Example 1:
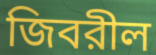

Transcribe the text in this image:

জিবরীল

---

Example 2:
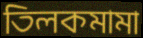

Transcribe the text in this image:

তিলকমামা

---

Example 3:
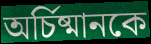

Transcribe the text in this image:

অর্চিষ্মানকে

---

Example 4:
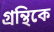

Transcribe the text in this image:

গ্রন্থিকে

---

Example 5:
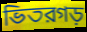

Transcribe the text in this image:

ভিতরগড়